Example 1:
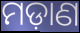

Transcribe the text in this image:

ମଡ଼ାଣ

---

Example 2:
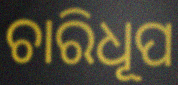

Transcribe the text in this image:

ଚାରିଧୂପ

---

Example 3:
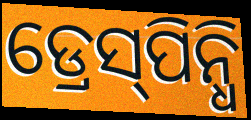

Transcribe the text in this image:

ଡ୍ରେସ୍‌ପିନ୍ଧି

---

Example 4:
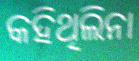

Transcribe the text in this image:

କହିଥିଲିନା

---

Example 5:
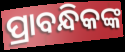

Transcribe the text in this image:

ପ୍ରାବନ୍ଧିକଙ୍କ